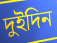
দুইদিন